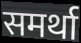
समर्था